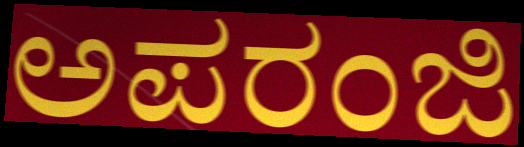
ಅಪರಂಜಿ